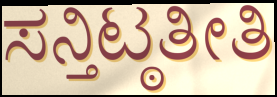
ಸನ್ತಿಟ್ಠತೀತಿ